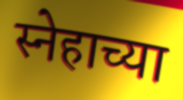
स्नेहाच्या